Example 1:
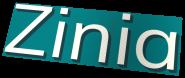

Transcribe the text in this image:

Zinia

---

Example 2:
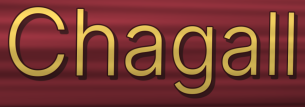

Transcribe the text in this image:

Chagall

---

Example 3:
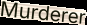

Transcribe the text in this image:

Murderer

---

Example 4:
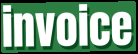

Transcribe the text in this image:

invoice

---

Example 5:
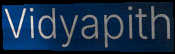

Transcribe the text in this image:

Vidyapith